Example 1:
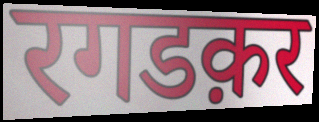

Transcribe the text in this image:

रगडक़र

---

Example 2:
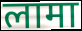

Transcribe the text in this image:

लामा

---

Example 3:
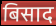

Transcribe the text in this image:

बिसाद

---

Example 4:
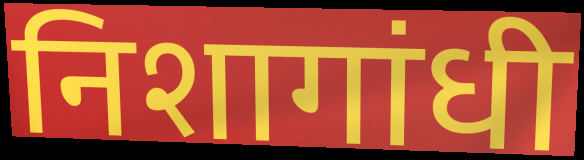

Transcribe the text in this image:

निशागांधी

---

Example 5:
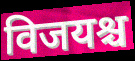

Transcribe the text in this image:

विजयश्च